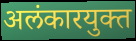
अलंकारयुक्त